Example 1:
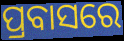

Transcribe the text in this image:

ପ୍ରବାସରେ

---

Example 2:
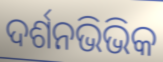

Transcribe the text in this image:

ଦର୍ଶନଭିଭିକ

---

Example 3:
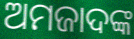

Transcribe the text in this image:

ଅମଜାଦଙ୍କ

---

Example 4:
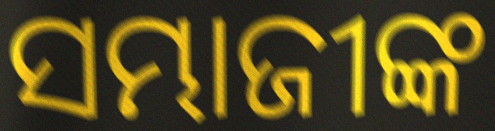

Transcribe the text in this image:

ସମ୍ଭାଜୀଙ୍କ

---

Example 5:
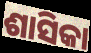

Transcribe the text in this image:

ଶାସିକା